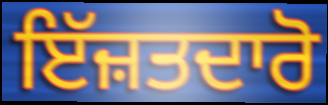
ਇੱਜ਼ਤਦਾਰੋ